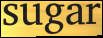
sugar